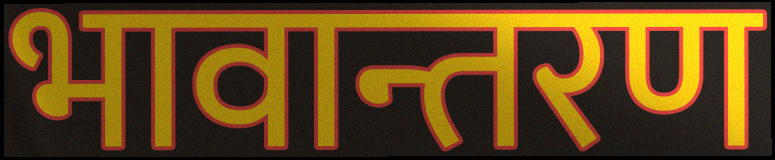
भावान्तरण